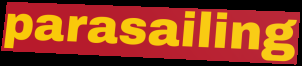
parasailing